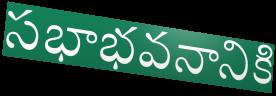
సభాభవనానికి